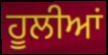
ਹੂਲੀਆਂ